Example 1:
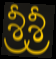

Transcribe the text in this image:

శ్రీశ్రీ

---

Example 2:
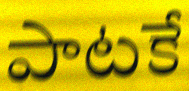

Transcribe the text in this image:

పాటకే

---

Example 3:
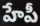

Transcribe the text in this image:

హేపీ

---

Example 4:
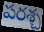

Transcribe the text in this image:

పరశ్చ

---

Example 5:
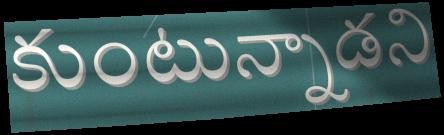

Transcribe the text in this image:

కుంటున్నాడని